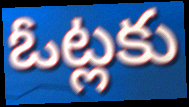
ఓట్లకు